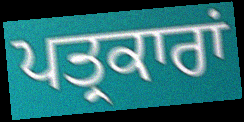
ਪਤ੍ਰਕਾਰਾਂ